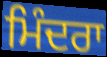
ਮਿੰਦਰਾ